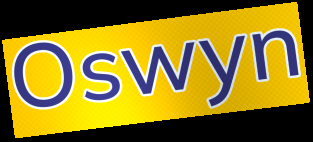
Oswyn